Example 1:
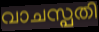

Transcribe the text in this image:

വാചസ്പതി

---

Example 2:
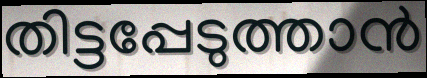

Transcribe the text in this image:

തിട്ടപ്പേടുത്താൻ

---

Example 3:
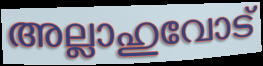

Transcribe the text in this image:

അല്ലാഹുവോട്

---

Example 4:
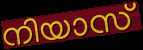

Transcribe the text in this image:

നിയാസ്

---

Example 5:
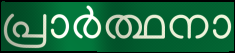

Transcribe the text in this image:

പ്രാർത്ഥനാ